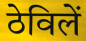
ठेविलें